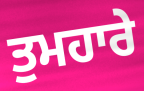
ਤੁਮਹਾਰੇ